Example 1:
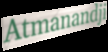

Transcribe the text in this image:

Atmanandji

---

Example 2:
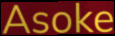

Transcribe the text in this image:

Asoke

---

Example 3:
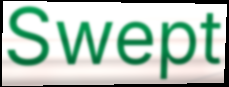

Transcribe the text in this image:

Swept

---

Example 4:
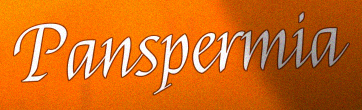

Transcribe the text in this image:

Panspermia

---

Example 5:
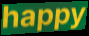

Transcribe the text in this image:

happy